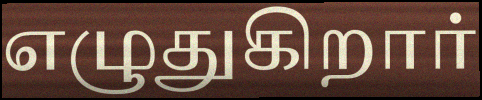
எழுதுகிறார்